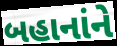
બહાનાંને